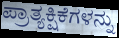
ಪ್ರಾತ್ಯಕ್ಷಿಕೆಗಳನ್ನು